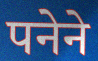
पनेने